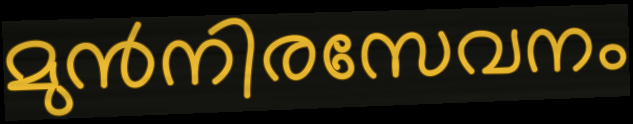
മുൻനിരസേവനം